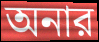
অনার